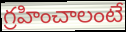
గ్రహించాలంటే